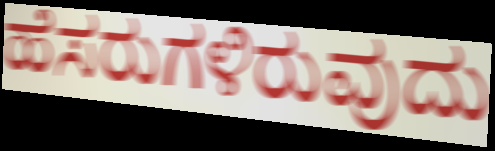
ಹೆಸರುಗಳಿರುವುದು